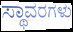
ಸ್ಥಾವರಗಳು